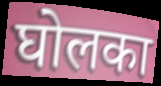
घोलका